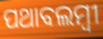
ପଥାବଲମ୍ବୀ